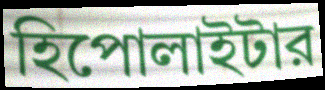
হিপোলাইটার